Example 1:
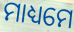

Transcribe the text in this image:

ମାଧ୍ୟମେ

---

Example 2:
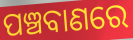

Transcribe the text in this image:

ପଞ୍ଚବାଣରେ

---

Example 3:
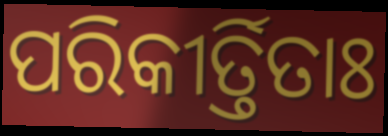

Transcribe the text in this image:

ପରିକୀର୍ତ୍ତିତାଃ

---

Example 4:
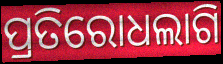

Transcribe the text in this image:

ପ୍ରତିରୋଧଲାଗି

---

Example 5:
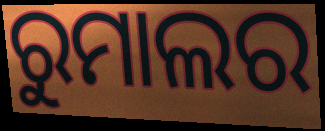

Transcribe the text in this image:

ରୁମାଲର